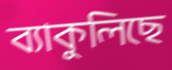
ব্যাকুলিছে